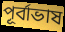
পূর্বাভাষ